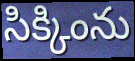
సిక్కింను